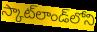
స్కాట్‌లాండ్‌లోని